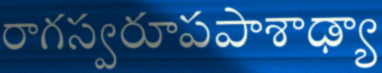
రాగస్వరూపపాశాఢ్యా